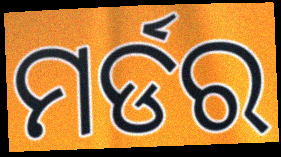
ମର୍ଡର